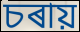
চৰায়